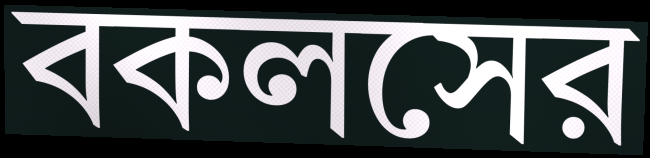
বকলসের